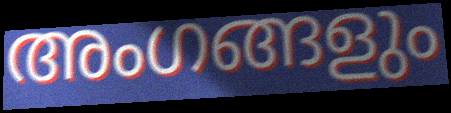
അംഗങ്ങളും